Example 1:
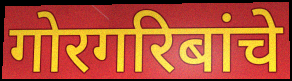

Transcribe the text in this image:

गोरगरिबांचे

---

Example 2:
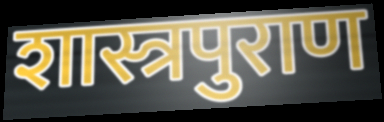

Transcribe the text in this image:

शास्त्रपुराण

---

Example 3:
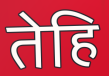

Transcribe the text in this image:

तेहि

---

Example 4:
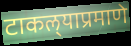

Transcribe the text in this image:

टाकल्याप्रमाणे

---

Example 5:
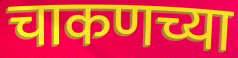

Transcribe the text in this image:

चाकणच्या